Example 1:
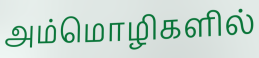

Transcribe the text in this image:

அம்மொழிகளில்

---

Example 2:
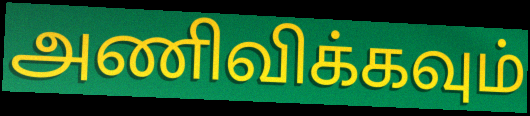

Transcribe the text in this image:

அணிவிக்கவும்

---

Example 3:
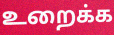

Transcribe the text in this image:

உறைக்க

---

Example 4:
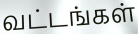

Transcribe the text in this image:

வட்டங்கள்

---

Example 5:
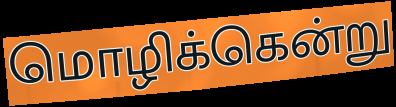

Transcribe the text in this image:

மொழிக்கென்று